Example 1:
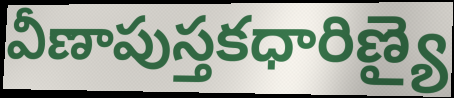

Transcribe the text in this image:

వీణాపుస్తకధారిణ్యై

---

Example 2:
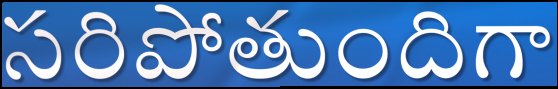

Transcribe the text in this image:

సరిపోతుందిగా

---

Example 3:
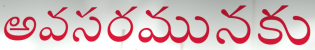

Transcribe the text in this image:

అవసరమునకు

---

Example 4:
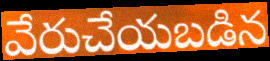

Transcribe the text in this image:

వేరుచేయబడిన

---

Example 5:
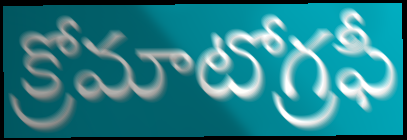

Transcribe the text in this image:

క్రోమాటోగ్రఫీ